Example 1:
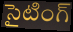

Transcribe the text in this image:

సైటింగ్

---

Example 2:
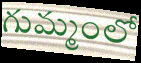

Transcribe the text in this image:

గుమ్మంలో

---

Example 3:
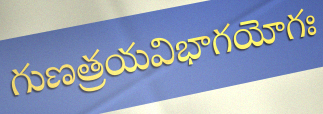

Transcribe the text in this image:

గుణత్రయవిభాగయోగః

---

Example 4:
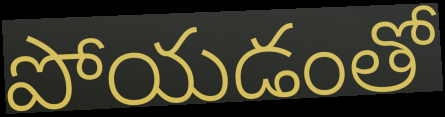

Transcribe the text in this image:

పోయడంతో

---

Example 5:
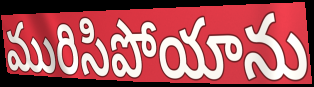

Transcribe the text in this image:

మురిసిపోయాను